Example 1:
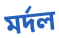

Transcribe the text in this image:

মর্দল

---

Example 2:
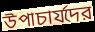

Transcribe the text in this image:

উপাচার্যদের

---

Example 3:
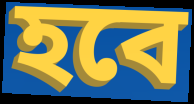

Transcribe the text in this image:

হবে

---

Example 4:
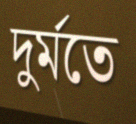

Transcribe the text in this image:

দুর্মতে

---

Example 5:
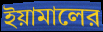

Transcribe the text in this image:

ইয়ামালের